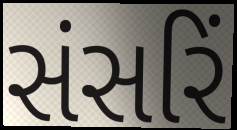
સંસરિં